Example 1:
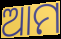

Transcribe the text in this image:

ଆମ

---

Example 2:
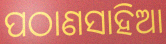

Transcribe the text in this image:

ପଠାଣସାହିଆ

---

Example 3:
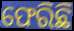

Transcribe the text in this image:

ଫେରିଛି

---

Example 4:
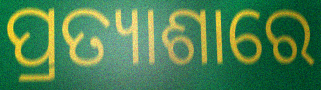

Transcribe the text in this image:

ପ୍ରତ୍ୟାଶାରେ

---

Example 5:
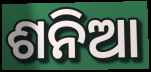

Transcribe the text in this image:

ଶନିଆ